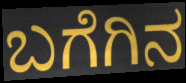
ಬಗೆಗಿನ